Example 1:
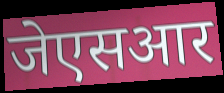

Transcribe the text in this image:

जेएसआर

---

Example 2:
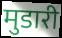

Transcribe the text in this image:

मुडारी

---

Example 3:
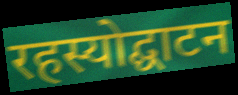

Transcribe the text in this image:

रहस्योद्घाटन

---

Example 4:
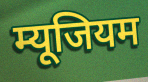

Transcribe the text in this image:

म्यूजियम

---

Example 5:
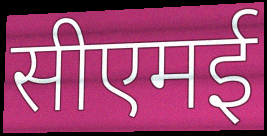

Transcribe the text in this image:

सीएमई